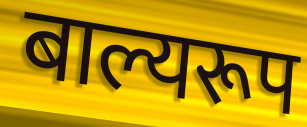
बाल्यरूप